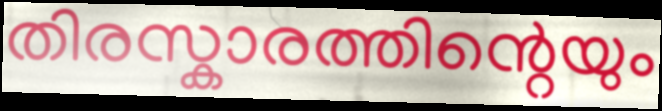
തിരസ്കാരത്തിന്റെയും